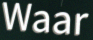
Waar